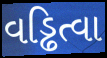
વડ્ઢિત્વા